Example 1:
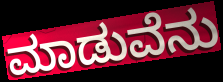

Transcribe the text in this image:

ಮಾಡುವೆನು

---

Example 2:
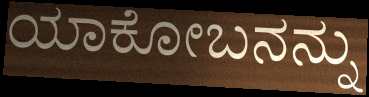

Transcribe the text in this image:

ಯಾಕೋಬನನ್ನು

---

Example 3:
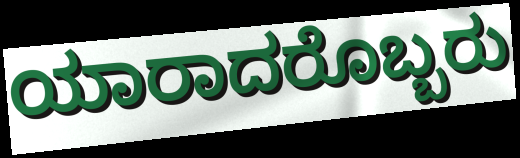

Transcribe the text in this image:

ಯಾರಾದರೊಬ್ಬರು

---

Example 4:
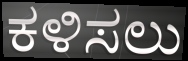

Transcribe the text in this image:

ಕಳಿಸಲು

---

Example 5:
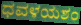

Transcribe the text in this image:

ಧವಳಯಶಂ